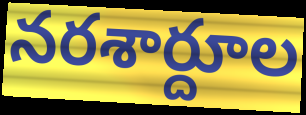
నరశార్దూల